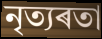
নৃত্যৰতা